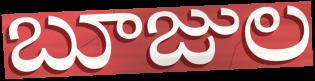
బూజుల